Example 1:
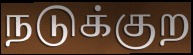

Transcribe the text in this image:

நடுக்குற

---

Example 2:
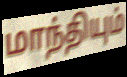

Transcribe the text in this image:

மாந்தியும்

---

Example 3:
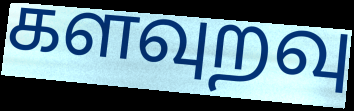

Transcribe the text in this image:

களவுறவு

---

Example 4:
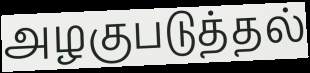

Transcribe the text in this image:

அழகுபடுத்தல்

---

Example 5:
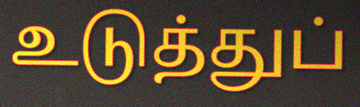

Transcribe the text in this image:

உடுத்துப்